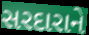
સરદારાને